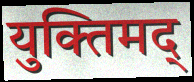
युक्तिमद्